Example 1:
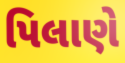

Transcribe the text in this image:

પિલાણે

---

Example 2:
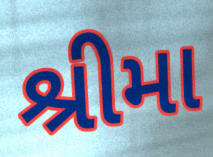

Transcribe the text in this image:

શ્રીમા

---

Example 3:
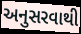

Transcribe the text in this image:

અનુસરવાથી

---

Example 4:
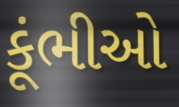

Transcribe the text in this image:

કૂંભીઓ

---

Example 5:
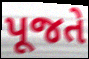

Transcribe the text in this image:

પૂજતે